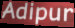
Adipur